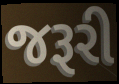
જરૂરી